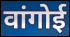
वांगोई